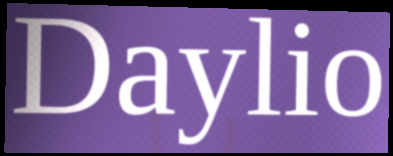
Daylio